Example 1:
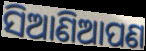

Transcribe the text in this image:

ସିଆଣିଆପଣ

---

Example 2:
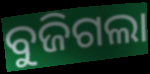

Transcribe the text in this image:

ବୁଜିଗଲା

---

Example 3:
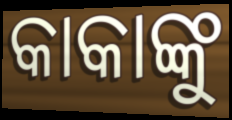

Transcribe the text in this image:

କାକାଙ୍କୁ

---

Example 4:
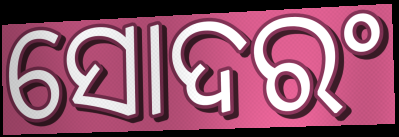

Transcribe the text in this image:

ସୋଦରଂ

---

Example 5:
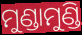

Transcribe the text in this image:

ମୁଣ୍ଡାମୁଣ୍ଡି